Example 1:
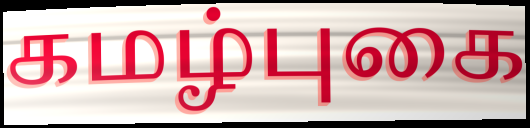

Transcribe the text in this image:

கமழ்புகை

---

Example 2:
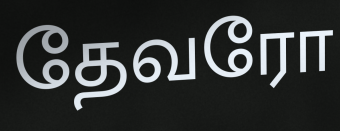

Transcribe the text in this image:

தேவரோ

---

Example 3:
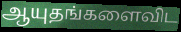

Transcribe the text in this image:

ஆயுதங்களைவிட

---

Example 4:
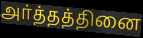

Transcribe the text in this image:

அர்த்தத்தினை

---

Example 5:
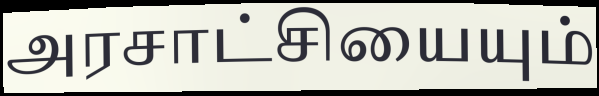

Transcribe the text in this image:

அரசாட்சியையும்